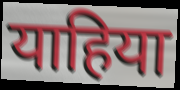
याहिया